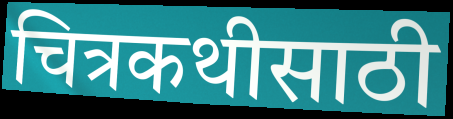
चित्रकथीसाठी